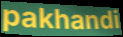
pakhandi